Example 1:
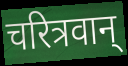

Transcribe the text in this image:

चरित्रवान्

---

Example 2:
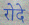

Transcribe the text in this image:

रोदे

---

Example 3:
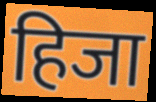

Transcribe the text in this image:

हिजा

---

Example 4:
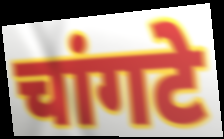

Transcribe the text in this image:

चांगटे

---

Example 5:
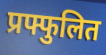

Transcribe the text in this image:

प्रफ्फुलित